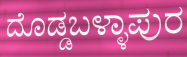
ದೊಡ್ಡಬಳ್ಳಾಪುರ